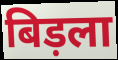
बिड़ला